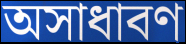
অসাধাবণ